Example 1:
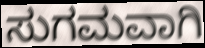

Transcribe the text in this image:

ಸುಗಮವಾಗಿ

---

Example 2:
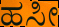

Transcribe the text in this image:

ಹಸೀ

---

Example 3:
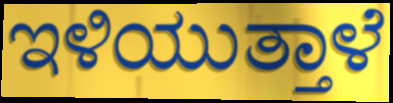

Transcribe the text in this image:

ಇಳಿಯುತ್ತಾಳೆ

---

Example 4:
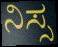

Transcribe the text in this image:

ನಿಸ್ಸ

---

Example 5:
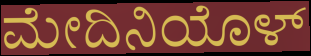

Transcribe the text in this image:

ಮೇದಿನಿಯೊಳ್